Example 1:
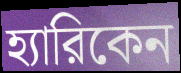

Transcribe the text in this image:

হ্যারিকেন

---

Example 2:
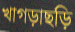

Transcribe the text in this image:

খাগড়াছড়ি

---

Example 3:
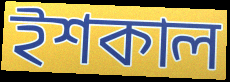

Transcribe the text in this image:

ইশকাল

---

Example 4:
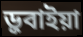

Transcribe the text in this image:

ড়ুবাইয়া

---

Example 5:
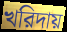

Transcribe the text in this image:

খরিদায়